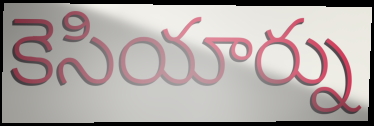
కెసియార్ను